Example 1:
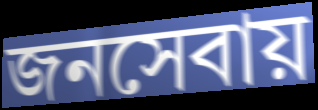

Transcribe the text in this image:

জনসেবায়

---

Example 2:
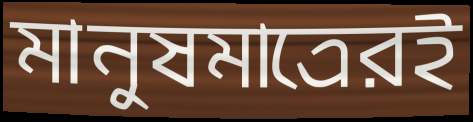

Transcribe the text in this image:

মানুষমাত্রেরই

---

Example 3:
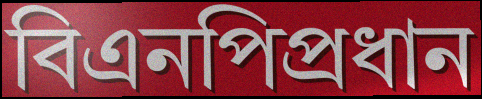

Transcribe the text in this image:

বিএনপিপ্রধান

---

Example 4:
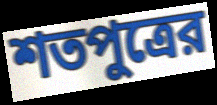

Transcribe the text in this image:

শতপুত্রের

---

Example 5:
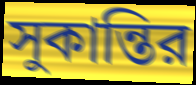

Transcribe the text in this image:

সুকান্তির